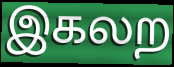
இகலற